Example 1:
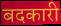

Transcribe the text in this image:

बदकारी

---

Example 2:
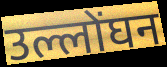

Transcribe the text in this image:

उल्लोंघन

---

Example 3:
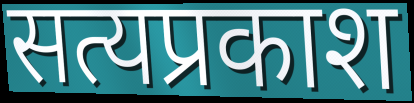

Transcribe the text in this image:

सत्यप्रकाश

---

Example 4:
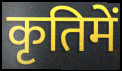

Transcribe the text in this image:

कृतिमें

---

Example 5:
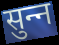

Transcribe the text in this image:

सुन्‍न